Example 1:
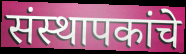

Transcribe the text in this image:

संस्थापकांचे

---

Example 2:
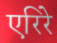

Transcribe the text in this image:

एरिरे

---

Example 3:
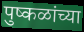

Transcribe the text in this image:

पुष्कळांच्या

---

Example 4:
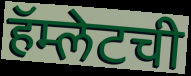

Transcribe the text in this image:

हॅम्लेटची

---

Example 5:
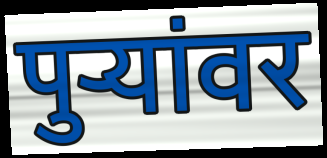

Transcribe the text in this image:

पुऱ्यांवर